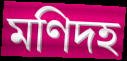
মণিদহ